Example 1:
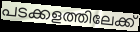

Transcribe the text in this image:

പടക്കളത്തിലേക്ക്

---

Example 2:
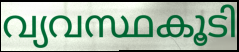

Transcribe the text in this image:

വ്യവസ്ഥകൂടി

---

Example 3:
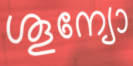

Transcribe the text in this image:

ശൂന്യോ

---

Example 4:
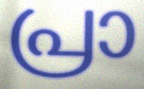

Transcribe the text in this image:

പ്രാ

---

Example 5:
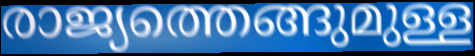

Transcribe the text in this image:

രാജ്യത്തെങ്ങുമുള്ള